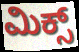
ಮಿಕ್ಸ್